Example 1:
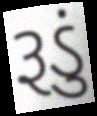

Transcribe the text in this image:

રૂડું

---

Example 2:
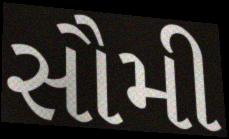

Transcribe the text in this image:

સૌમી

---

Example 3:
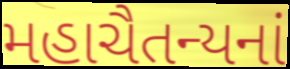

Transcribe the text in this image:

મહાચૈતન્યનાં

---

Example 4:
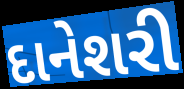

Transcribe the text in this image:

દાનેશરી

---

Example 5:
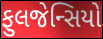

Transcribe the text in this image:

ફુલજેન્સિયો